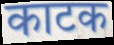
काटक